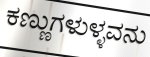
ಕಣ್ಣುಗಳುಳ್ಳವನು